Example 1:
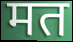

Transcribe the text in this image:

मत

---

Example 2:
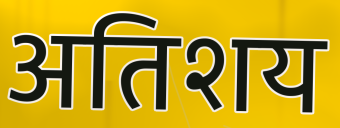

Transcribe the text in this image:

अतिशय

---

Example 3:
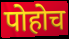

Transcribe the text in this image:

पोहोच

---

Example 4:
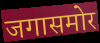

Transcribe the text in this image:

जगासमोर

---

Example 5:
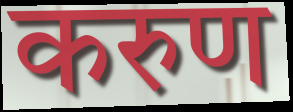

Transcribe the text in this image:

करुण